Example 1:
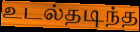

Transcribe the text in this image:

உடல்தடிந்த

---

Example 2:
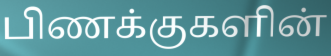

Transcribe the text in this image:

பிணக்குகளின்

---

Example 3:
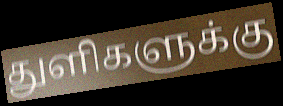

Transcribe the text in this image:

துளிகளுக்கு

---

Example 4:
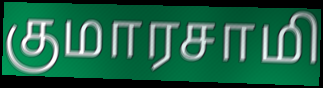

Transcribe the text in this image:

குமாரசாமி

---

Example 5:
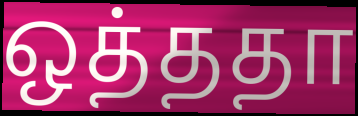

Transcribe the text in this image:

ஒத்ததா